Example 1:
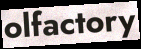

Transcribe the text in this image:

olfactory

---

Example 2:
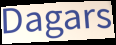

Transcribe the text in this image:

Dagars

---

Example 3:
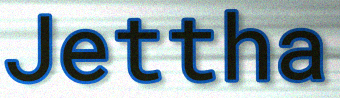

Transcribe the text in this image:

Jettha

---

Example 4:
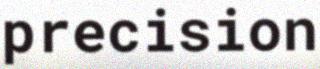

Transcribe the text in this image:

precision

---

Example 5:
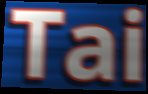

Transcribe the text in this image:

Tai